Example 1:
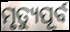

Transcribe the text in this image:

ମୃତ୍ୟୁପୂର୍ବ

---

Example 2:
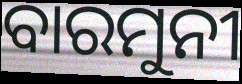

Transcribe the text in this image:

ବାରମୁନୀ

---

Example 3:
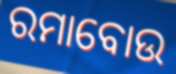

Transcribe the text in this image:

ରମାବୋଉ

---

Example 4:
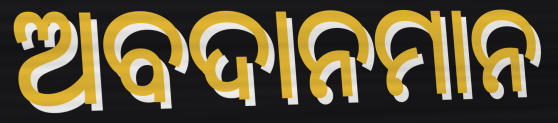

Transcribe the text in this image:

ଅବଦାନମାନ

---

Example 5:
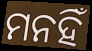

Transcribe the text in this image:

ମନହିଁ